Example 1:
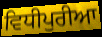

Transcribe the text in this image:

ਵਿਧੀਪੁਰੀਆ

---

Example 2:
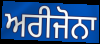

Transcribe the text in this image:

ਅਰੀਜੋਨਾ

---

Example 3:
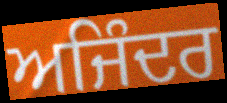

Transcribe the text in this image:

ਅਜਿੰਦਰ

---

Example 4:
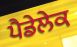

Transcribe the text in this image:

ਪੈਡੇਲੇਕ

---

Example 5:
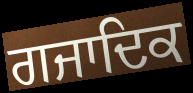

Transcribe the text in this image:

ਗਜਾਦਿਕ